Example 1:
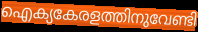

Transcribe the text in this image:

ഐക്യകേരളത്തിനുവേണ്ടി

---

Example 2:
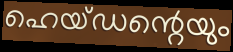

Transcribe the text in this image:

ഹെയ്ഡന്റെയും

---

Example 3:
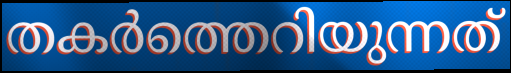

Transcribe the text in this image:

തകർത്തെറിയുന്നത്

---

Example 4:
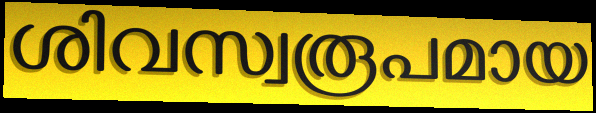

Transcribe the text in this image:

ശിവസ്വരൂപമായ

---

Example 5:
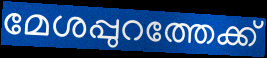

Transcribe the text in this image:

മേശപ്പുറത്തേക്ക്